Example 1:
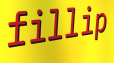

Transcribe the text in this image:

fillip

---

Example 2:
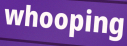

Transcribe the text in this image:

whooping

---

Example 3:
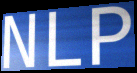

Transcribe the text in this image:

NLP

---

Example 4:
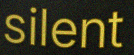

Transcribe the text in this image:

silent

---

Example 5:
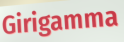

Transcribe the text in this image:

Girigamma